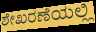
ಶೇಖರಣೆಯಲ್ಲಿ